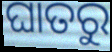
ଘାତରୁ